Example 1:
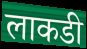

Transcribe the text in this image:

लाकडी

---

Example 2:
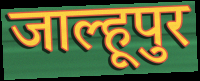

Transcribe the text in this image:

जाल्हूपुर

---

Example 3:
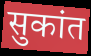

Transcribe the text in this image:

सुकांत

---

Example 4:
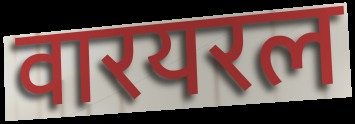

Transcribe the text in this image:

वारयरल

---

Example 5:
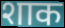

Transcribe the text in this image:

शाक